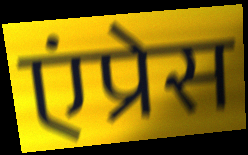
एंप्रेस